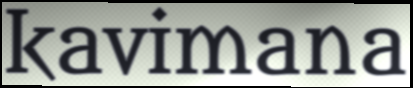
kavimana